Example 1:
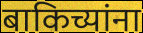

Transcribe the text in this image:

बाकिच्यांना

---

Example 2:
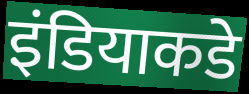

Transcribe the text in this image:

इंडियाकडे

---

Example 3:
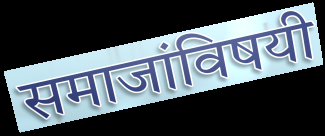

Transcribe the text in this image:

समाजांविषयी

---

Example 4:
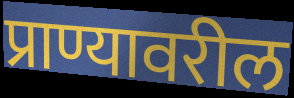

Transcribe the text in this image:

प्राण्यावरील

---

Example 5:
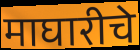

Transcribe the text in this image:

माघारीचे